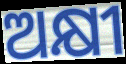
ଅକ୍ଷୀ